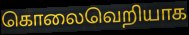
கொலைவெறியாக